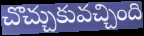
చొచ్చుకువచ్చింది